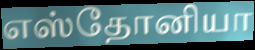
எஸ்தோனியா